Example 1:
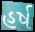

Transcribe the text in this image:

હર્ષ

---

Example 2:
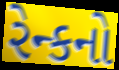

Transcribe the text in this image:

રેન્કનો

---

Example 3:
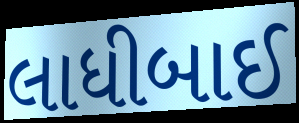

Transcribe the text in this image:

લાધીબાઈ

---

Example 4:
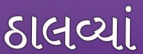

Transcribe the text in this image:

ઠાલવ્યાં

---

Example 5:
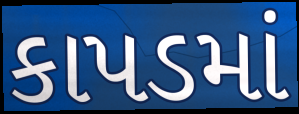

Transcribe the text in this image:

કાપડમાં